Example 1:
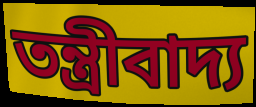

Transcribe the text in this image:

তন্ত্ৰীবাদ্য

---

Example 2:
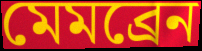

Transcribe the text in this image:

মেমব্ৰেন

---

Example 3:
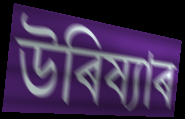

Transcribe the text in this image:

উৰিষ্যাৰ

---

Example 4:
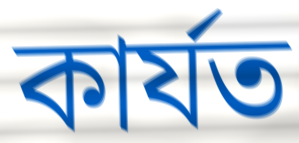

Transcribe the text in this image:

কাৰ্যত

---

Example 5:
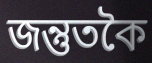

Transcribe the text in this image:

জন্তুতকৈ